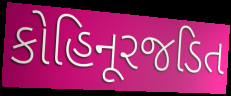
કોહિનૂરજડિત